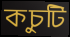
কচুটি